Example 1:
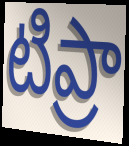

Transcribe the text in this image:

టిప్రా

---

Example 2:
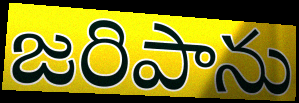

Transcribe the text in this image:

జరిపాను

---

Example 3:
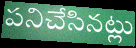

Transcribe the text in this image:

పనిచేసినట్లు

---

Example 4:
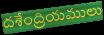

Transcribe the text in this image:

దశేంద్రియములు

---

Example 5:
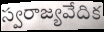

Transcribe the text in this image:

స్వరాజ్యవేదిక